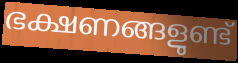
ഭക്ഷണങ്ങളുണ്ട്